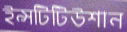
ইন্সটিটিউশান